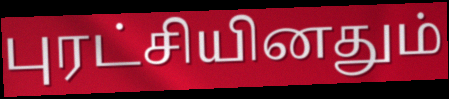
புரட்சியினதும்